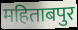
महिताबपुर